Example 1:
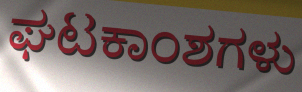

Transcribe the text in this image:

ಘಟಕಾಂಶಗಳು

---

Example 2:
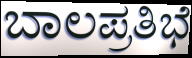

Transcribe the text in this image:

ಬಾಲಪ್ರತಿಭೆ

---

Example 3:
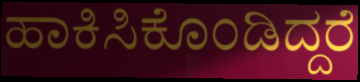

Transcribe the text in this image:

ಹಾಕಿಸಿಕೊಂಡಿದ್ದರೆ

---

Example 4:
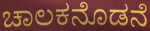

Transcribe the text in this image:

ಚಾಲಕನೊಡನೆ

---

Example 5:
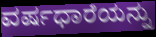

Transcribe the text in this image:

ವರ್ಷಧಾರೆಯನ್ನು